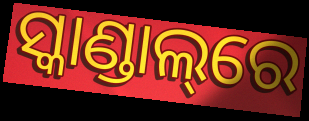
ସ୍କାଣ୍ଡାଲ୍‌ରେ